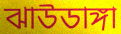
ঝাউডাঙ্গা